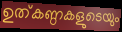
ഉത്കണ്ഠകളുടെയും